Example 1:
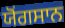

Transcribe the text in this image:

ਯੋਂਗਸਾਨ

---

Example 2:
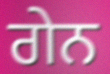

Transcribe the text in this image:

ਗੇਨ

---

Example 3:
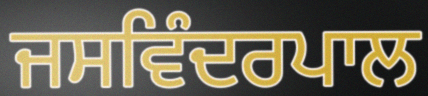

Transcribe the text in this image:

ਜਸਵਿੰਦਰਪਾਲ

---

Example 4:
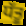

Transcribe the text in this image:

ਧੱਤੂ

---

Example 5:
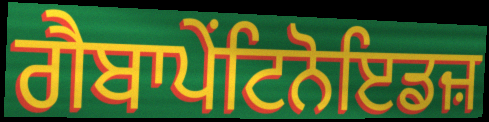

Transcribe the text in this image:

ਗੈਬਾਪੇਂਟਿਨੋਇਡਜ਼